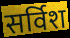
सर्विश